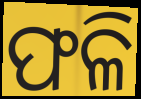
ଫଳି